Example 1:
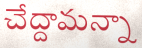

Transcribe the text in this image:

చేద్దామన్నా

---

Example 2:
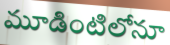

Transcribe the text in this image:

మూడింటిలోనూ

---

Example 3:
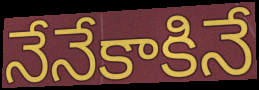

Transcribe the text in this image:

నేనేకాకినే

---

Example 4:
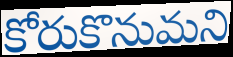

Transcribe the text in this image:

కోరుకొనుమని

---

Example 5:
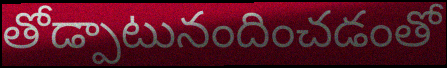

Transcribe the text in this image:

తోడ్పాటునందించడంతో